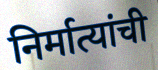
निर्मात्यांची